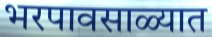
भरपावसाळ्यात